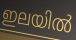
ഇലയിൽ